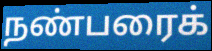
நண்பரைக்